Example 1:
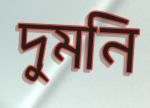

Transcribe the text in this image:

দুমনি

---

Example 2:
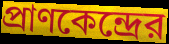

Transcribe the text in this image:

প্রাণকেন্দ্রের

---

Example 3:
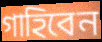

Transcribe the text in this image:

গাহিবেন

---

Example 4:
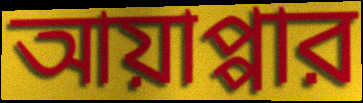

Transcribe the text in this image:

আয়াপ্পার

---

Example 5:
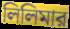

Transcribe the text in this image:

লিলিমার